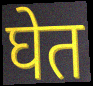
घेत